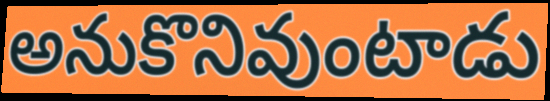
అనుకొనివుంటాడు